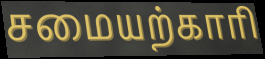
சமையற்காரி